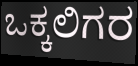
ಒಕ್ಕಲಿಗರ